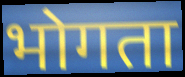
भोगता